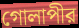
গোলাপীর